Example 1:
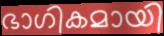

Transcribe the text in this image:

ഭാഗികമായി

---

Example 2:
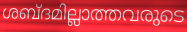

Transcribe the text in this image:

ശബ്ദമില്ലാത്തവരുടെ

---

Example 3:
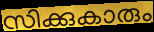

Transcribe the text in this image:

സിക്കുകാരും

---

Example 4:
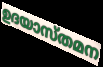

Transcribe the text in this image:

ഉദയാസ്തമന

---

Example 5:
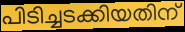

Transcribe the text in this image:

പിടിച്ചടക്കിയതിന്